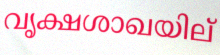
വൃക്ഷശാഖയില്